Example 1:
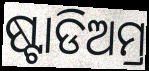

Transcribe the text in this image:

ଷ୍ଟାଡିଅମ୍ର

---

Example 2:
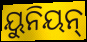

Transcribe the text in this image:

ୟୁନିୟନ୍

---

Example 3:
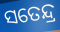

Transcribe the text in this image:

ସତେନ୍ଦ୍ର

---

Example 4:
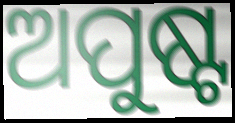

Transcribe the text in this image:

ଅପୁଷ୍ଟ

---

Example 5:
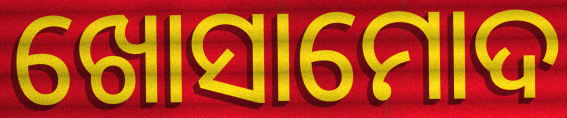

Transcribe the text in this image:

ଖୋସାମୋଦ